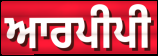
ਆਰਪੀਪੀ